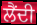
ਲੈਂਦੀ